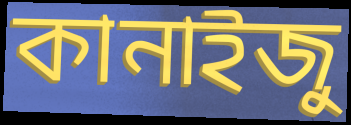
কানাইজু